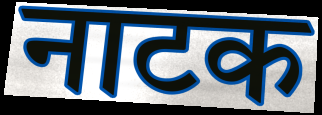
नाटक